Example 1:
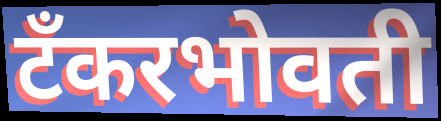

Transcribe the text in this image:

टँकरभोवती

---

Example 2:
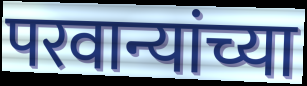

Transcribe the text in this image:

परवान्यांच्या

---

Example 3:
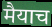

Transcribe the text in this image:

मैयाच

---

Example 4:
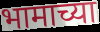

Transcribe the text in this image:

भामाच्या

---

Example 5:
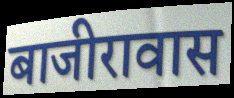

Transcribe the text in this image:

बाजीरावास